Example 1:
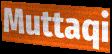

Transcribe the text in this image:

Muttaqi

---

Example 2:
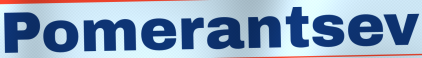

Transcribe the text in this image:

Pomerantsev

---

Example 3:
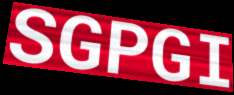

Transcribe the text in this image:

SGPGI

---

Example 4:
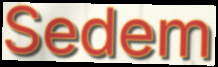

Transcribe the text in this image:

Sedem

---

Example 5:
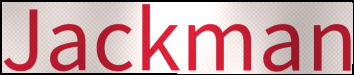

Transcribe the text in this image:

Jackman